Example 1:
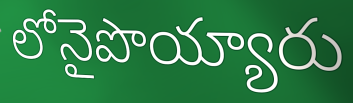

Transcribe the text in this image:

లోనైపొయ్యారు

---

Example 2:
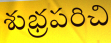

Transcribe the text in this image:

శుభ్రపరిచి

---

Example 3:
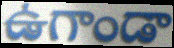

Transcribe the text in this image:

ఉగాండా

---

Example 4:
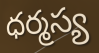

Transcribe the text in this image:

ధర్మస్య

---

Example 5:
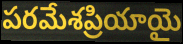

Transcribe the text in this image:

పరమేశప్రియాయై